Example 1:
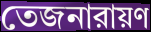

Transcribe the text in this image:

তেজনারায়ণ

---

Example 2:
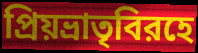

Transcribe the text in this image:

প্রিয়ভ্রাতৃবিরহে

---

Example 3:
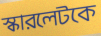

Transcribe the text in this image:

স্কারলেটকে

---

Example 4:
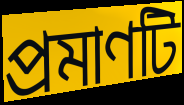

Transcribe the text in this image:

প্রমাণটি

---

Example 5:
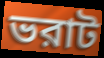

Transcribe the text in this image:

ভরাট